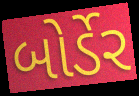
બોર્ડેર